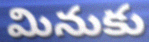
మినుకు